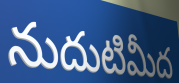
నుదుటిమీద